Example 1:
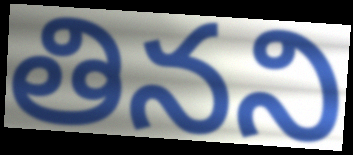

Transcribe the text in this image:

తినని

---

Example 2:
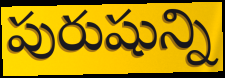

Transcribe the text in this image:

పురుషున్ని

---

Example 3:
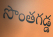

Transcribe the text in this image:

సొంతగడ్డ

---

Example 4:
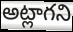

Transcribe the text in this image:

అట్లాగని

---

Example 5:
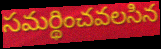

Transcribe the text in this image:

సమర్థించవలసిన